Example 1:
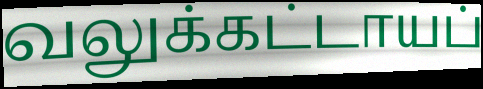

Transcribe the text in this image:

வலுக்கட்டாயப்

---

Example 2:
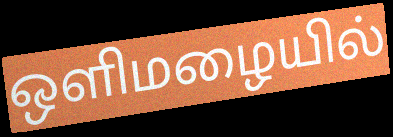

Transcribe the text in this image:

ஒளிமழையில்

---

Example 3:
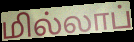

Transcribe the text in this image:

மில்லாப்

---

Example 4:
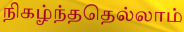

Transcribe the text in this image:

நிகழ்ந்ததெல்லாம்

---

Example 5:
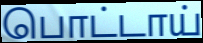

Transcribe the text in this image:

பொட்டாய்